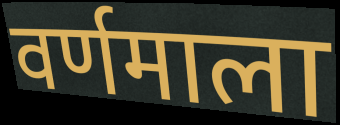
वर्णमाला